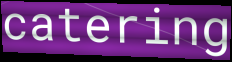
catering